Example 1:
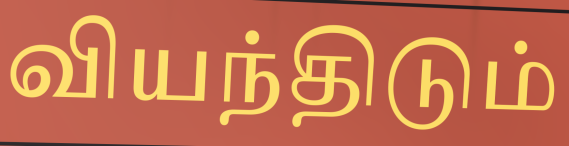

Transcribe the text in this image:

வியந்திடும்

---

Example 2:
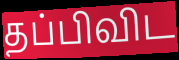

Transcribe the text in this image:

தப்பிவிட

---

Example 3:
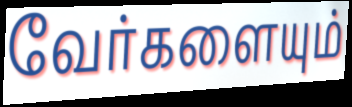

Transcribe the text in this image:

வேர்களையும்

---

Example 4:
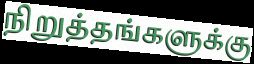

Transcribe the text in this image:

நிறுத்தங்களுக்கு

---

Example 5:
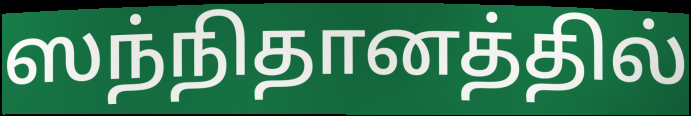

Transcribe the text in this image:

ஸந்நிதானத்தில்